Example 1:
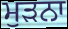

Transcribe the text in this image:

ਮੁੜਨਾ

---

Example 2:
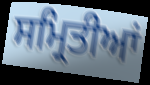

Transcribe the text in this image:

ਸਮ੍ਰਿਤੀਆਂ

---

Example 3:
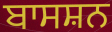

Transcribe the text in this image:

ਬਾਸਸ਼ਨ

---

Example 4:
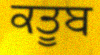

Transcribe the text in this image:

ਕਤੂਬ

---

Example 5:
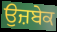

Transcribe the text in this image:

ਉਜ਼ਬੇਕ